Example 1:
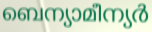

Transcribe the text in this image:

ബെന്യാമീന്യർ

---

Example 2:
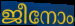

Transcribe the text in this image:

ജീനോം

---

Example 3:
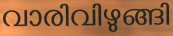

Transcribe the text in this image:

വാരിവിഴുങ്ങി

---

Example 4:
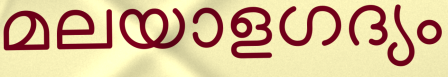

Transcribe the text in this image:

മലയാളഗദ്യം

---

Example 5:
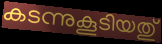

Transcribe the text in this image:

കടന്നുകൂടിയതു്